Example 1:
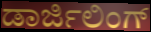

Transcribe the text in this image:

ಡಾರ್ಜಿಲಿಂಗ್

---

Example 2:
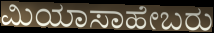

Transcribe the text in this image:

ಮಿಯಾಸಾಹೇಬರು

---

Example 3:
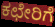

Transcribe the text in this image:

ಕಛೇರಿಗೆ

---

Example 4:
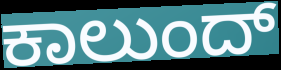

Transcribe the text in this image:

ಕಾಲುಂದ್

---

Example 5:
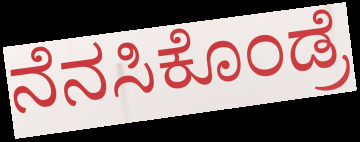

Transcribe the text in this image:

ನೆನಸಿಕೊಂಡ್ರೆ